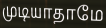
முடியாதாமே